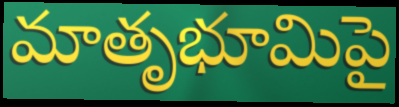
మాతృభూమిపై